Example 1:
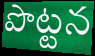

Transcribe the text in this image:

పొట్టన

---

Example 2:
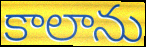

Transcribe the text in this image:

కాలాను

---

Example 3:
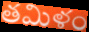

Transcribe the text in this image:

తమిళం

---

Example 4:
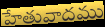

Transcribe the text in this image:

హేతువాదము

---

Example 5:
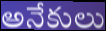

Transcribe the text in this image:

అనేకులు